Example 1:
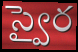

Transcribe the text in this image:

స్వైర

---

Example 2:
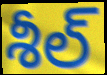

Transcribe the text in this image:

శీల్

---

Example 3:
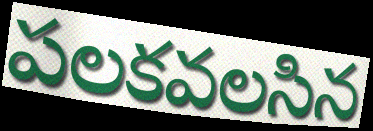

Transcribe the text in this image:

పలకవలసిన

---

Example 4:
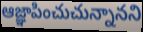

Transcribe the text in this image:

ఆజ్ఞాపించుచున్నానని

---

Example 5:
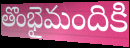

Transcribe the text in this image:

తొంభైమందికి